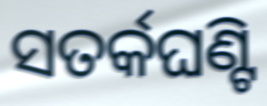
ସତର୍କଘଣ୍ଟି